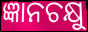
ଜ୍ଞାନଚକ୍ଷୁ